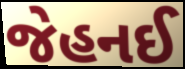
જેહનઈ